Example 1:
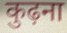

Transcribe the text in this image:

कुढ़ना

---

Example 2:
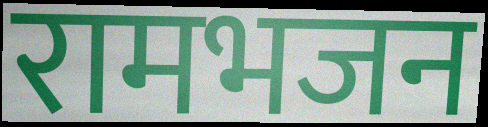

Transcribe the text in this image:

रामभजन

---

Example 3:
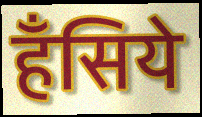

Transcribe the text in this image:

हँसिये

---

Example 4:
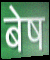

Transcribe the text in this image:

बेष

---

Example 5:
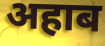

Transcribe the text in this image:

अहाब